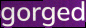
gorged